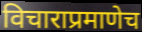
विचाराप्रमाणेच